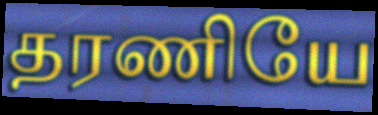
தரணியே